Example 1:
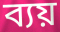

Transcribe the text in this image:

ব্যয়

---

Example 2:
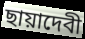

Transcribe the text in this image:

ছায়াদেবী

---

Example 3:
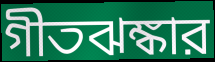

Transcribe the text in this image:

গীতঝঙ্কার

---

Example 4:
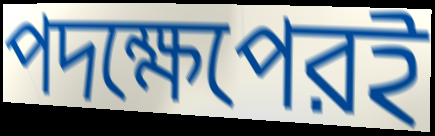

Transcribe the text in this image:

পদক্ষেপেরই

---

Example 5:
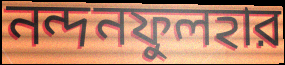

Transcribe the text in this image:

নন্দনফুলহার